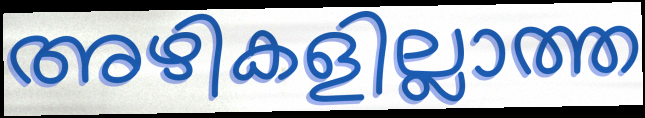
അഴികളില്ലാത്ത